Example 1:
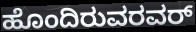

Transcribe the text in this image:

ಹೊಂದಿರುವರವರ್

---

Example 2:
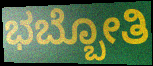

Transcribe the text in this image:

ಭಬ್ಬೋತಿ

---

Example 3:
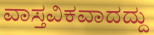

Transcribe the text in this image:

ವಾಸ್ತವಿಕವಾದದ್ದು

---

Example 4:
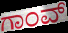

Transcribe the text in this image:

ಗಾಂವ್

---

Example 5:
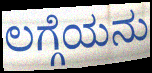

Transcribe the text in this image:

ಲಗ್ಗೆಯನು